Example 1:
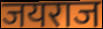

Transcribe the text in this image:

जयराज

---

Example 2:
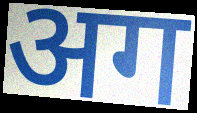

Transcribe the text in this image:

अग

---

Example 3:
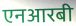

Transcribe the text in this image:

एनआरबी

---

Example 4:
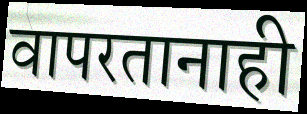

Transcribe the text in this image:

वापरतानाही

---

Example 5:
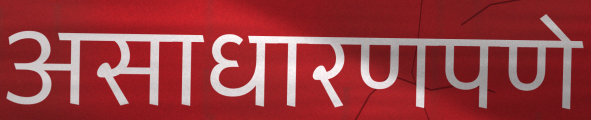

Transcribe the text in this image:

असाधारणपणे